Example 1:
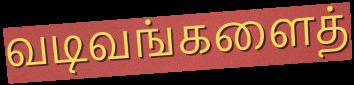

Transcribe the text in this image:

வடிவங்களைத்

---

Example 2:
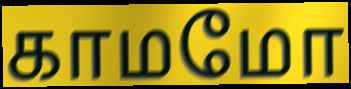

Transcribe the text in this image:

காமமோ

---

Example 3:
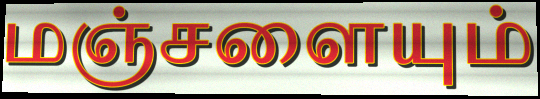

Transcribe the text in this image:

மஞ்சளையும்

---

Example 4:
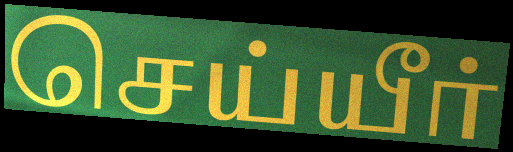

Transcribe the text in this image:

செய்யீர்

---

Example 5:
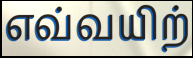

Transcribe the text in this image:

எவ்வயிற்